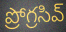
ప్రోగ్రసివ్